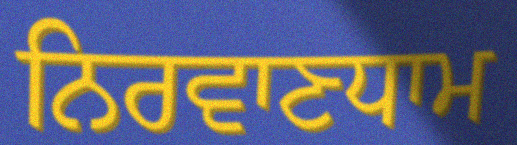
ਨਿਰਵਾਣਧਾਮ